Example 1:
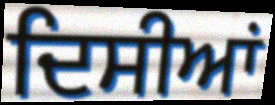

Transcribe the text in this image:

ਦਿਸੀਆਂ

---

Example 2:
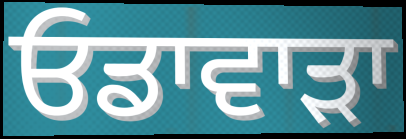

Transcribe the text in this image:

ਓਡਾਵਾੜਾ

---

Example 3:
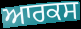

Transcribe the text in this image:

ਆਰਕਸ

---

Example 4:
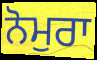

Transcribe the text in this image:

ਨੋਮੁਰਾ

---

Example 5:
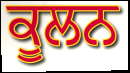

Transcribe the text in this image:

ਕੂਲਨ